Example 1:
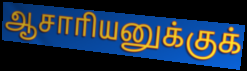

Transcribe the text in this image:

ஆசாரியனுக்குக்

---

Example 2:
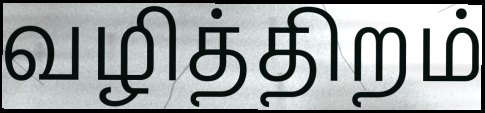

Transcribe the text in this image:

வழித்திறம்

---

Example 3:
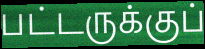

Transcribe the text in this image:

பட்டருக்குப்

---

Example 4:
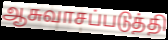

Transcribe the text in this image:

ஆசுவாசப்படுத்தி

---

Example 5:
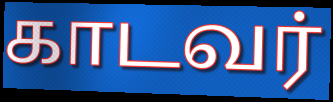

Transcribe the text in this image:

காடவர்